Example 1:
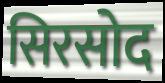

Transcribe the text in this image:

सिरसोद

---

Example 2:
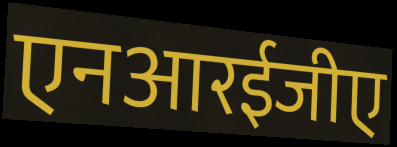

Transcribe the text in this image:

एनआरईजीए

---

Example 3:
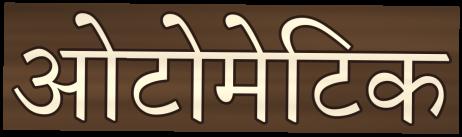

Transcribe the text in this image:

ओटोमेटिक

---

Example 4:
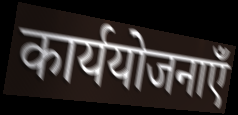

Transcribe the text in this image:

कार्ययोजनाएँ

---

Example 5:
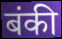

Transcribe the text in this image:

बंकी